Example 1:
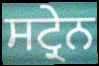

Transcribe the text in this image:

ਸਟ੍ਰੇਨ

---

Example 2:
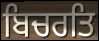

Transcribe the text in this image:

ਬਿਚਰਤਿ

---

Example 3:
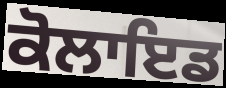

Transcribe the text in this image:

ਕੋਲਾਇਡ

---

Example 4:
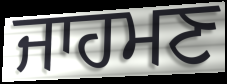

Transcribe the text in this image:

ਜਾਹਮਣ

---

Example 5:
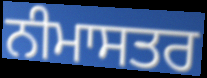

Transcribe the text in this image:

ਨੀਮਾਸਤਰ